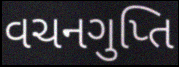
વચનગુપ્તિ